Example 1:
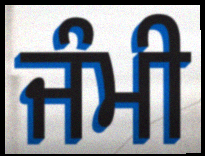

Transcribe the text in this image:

ਜੰਮੀ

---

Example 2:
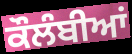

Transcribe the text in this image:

ਕੌਲੰਬੀਆਂ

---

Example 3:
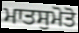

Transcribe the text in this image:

ਮਾਤਸੁਮੋਤੋ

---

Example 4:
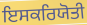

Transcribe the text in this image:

ਇਸਕਰਿਯੋਤੀ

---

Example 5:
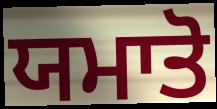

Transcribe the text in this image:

ਯਮਾਤੋ